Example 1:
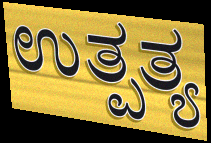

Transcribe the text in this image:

ಉತ್ಪತ್ಯ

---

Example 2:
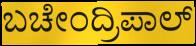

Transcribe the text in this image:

ಬಚೇಂದ್ರಿಪಾಲ್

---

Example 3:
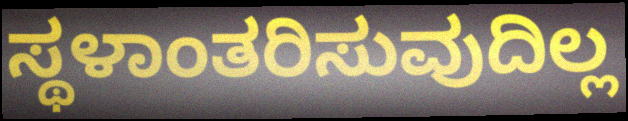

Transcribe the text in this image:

ಸ್ಥಳಾಂತರಿಸುವುದಿಲ್ಲ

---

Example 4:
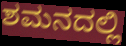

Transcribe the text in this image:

ಶಮನದಲ್ಲಿ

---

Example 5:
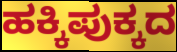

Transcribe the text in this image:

ಹಕ್ಕಿಪುಕ್ಕದ